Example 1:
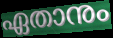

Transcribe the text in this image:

ഏതാനും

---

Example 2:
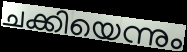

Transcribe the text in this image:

ചക്കിയെന്നും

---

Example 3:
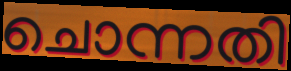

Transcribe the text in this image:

ചൊന്നതി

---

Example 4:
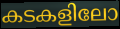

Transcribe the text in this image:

കടകളിലോ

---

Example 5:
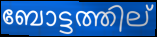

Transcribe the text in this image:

ബോട്ടത്തില്